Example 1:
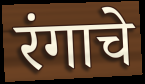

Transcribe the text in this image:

रंगाचे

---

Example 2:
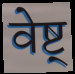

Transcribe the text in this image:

वेष्ट्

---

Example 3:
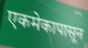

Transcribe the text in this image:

एकमेकापासून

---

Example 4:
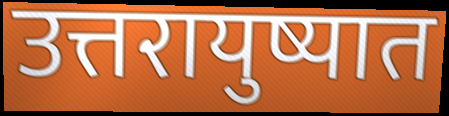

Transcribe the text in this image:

उत्तरायुष्यात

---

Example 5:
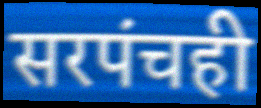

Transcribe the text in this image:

सरपंचही